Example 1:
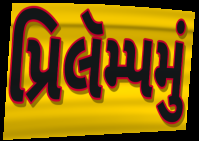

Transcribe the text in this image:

પ્રિલૅમ્પમું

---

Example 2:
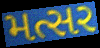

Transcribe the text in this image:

મત્સર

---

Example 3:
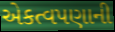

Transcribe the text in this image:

એકત્વપણાની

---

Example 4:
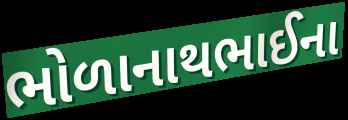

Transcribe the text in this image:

ભોળાનાથભાઈના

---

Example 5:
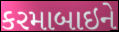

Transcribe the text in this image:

કરમાબાઇને